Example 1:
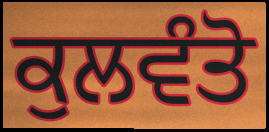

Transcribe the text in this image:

ਕੁਲਵੰਤੋ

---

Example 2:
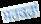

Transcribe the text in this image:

ਸਰਕਰਾਂ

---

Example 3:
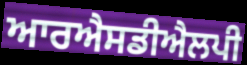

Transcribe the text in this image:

ਆਰਐਸਡੀਐਲਪੀ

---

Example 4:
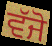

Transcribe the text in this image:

ਵੱਜੋ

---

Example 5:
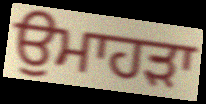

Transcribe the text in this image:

ਉਮਾਹੜਾ